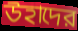
উহাদের